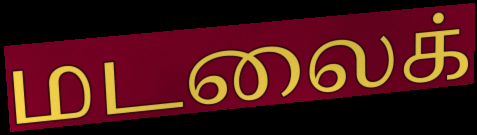
மடலைக்